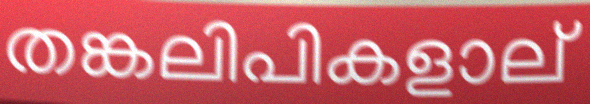
തങ്കലിപികളാല്